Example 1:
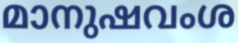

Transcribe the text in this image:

മാനുഷവംശ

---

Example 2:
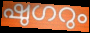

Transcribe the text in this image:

ഷുഗറും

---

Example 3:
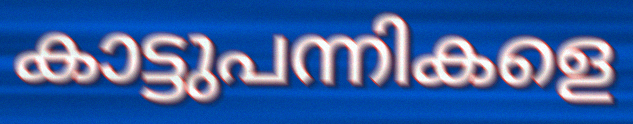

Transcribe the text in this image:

കാട്ടുപന്നികളെ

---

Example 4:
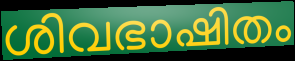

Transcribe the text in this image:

ശിവഭാഷിതം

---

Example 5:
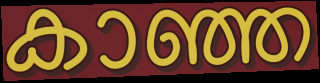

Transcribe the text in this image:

കാഞ്ഞ